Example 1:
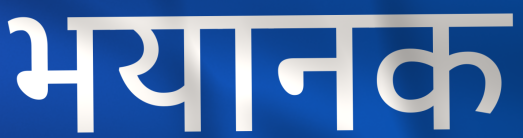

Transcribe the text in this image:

भयानक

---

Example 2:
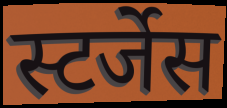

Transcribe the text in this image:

स्टर्जेस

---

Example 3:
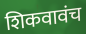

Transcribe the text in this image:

शिकवावंच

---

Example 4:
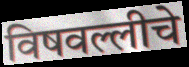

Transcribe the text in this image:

विषवल्लीचे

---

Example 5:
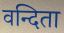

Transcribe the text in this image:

वन्दिता